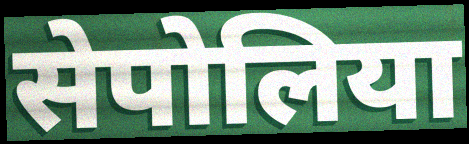
सेपोलिया